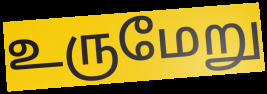
உருமேறு